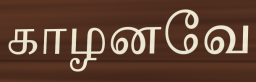
காழனவே